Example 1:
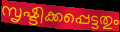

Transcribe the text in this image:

സൃഷ്ടിക്കപ്പെട്ടതും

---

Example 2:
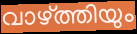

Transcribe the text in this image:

വാഴ്ത്തിയും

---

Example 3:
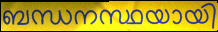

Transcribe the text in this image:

ബന്ധനസ്ഥയായി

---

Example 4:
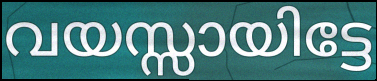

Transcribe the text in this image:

വയസ്സായിട്ടേ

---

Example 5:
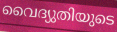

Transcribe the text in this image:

വൈദ്യുതിയുടെ